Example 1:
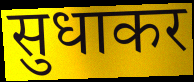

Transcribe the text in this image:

सुधाकर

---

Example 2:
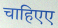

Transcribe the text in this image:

चाहिएए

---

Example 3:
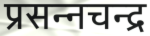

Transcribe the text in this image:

प्रसन्नचन्द्र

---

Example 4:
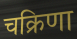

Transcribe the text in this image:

चक्रिणा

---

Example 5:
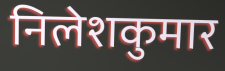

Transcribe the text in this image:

निलेशकुमार